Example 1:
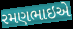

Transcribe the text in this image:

રમણભાઇએ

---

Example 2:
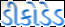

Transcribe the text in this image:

ડીકોડેડ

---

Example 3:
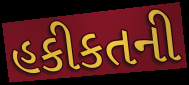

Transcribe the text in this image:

હકીકતની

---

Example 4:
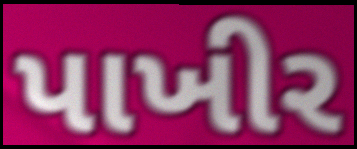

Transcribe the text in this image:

પાખીર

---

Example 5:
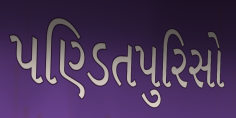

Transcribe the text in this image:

પણ્ડિતપુરિસો